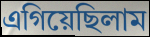
এগিয়েছিলাম